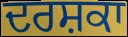
ਦਰਸ਼ਕਾ